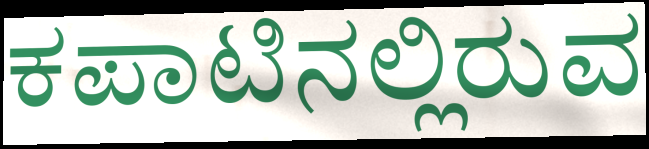
ಕಪಾಟಿನಲ್ಲಿರುವ